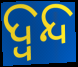
ଦ୍ବନ୍ଦ